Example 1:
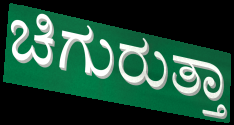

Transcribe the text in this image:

ಚಿಗುರುತ್ತಾ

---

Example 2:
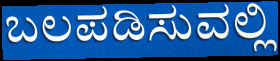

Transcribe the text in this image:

ಬಲಪಡಿಸುವಲ್ಲಿ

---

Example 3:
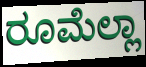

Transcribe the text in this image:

ರೂಮೆಲ್ಲಾ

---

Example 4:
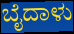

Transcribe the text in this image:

ಬೈದಾಳು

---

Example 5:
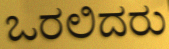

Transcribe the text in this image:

ಒರಲಿದರು